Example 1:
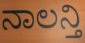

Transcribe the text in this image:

ನಾಲನ್ತಿ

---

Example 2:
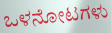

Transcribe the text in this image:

ಒಳನೋಟಗಳು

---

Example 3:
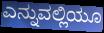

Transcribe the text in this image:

ಎನ್ನುವಲ್ಲಿಯೂ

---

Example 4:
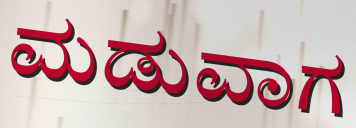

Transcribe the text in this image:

ಮಡುವಾಗ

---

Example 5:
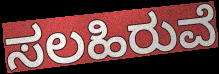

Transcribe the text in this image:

ಸಲಹಿರುವೆ